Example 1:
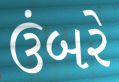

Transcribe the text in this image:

ઉંબરે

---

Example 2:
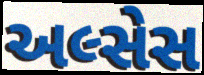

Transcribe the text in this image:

અલ્સેસ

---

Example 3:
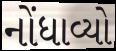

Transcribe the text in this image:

નોંધાવ્યો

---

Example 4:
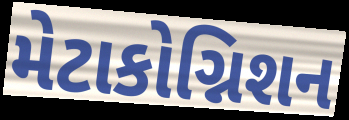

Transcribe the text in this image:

મેટાકોગ્નિશન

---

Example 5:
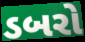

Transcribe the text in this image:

ડબરો